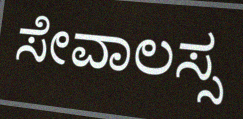
ಸೇವಾಲಸ್ಸ